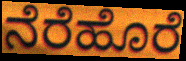
ನೆರೆಹೊರೆ